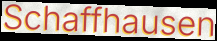
Schaffhausen